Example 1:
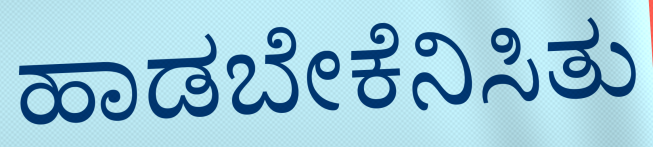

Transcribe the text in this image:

ಹಾಡಬೇಕೆನಿಸಿತು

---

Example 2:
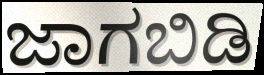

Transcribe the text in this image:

ಜಾಗಬಿಡಿ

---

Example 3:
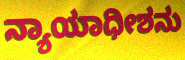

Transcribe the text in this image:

ನ್ಯಾಯಾಧೀಶನು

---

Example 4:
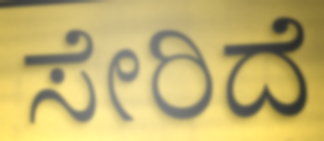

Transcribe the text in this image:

ಸೇರಿದೆ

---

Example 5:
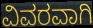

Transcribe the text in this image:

ವಿವರವಾಗಿ